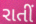
રાતીં